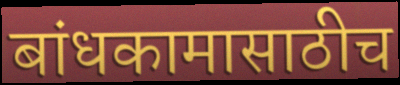
बांधकामासाठीच